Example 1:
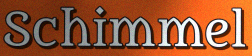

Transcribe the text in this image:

Schimmel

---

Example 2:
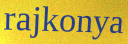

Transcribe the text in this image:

rajkonya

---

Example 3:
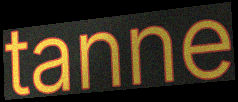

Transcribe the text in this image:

tanne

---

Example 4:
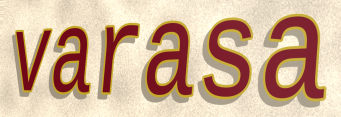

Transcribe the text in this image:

varasa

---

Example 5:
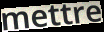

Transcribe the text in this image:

mettre